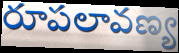
రూపలావణ్య